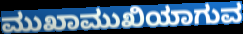
ಮುಖಾಮುಖಿಯಾಗುವ